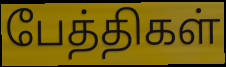
பேத்திகள்